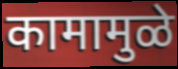
कामामुळे